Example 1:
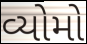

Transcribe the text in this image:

વ્યોમો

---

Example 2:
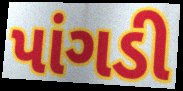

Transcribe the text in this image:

પાંગડી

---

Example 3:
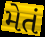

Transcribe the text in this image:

મેતં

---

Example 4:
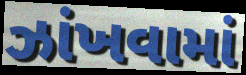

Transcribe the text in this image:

ઝાંખવામાં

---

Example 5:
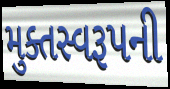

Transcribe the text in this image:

મુક્તસ્વરૂપની